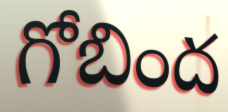
గోబింద